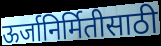
ऊर्जानिर्मितीसाठी